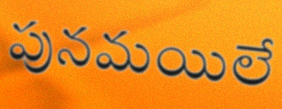
పునమయిలే